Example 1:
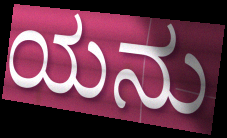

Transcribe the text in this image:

ಯನು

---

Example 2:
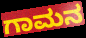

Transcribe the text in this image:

ಗಾಮನ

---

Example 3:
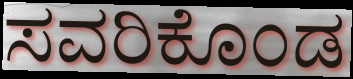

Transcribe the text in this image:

ಸವರಿಕೊಂಡ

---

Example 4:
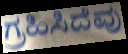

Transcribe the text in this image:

ಗ್ರಹಿಸಿದೆವು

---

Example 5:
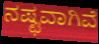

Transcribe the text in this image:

ನಷ್ಟವಾಗಿವೆ